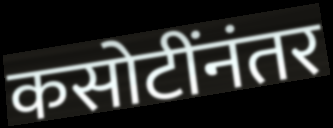
कसोटींनंतर